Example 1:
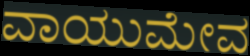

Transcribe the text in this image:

ವಾಯುಮೇವ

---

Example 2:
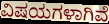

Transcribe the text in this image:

ವಿಷಯಗಳಾಗಿವೆ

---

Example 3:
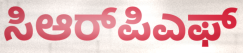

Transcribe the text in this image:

ಸಿಆರ್‌ಪಿಎಫ್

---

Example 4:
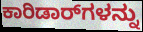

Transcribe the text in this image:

ಕಾರಿಡಾರ್‌ಗಳನ್ನು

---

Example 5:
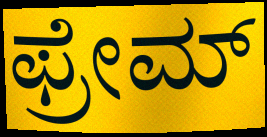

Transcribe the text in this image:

ಫ್ರೇಮ್